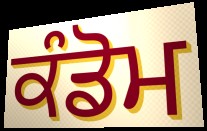
ਕੰਡੋਮ